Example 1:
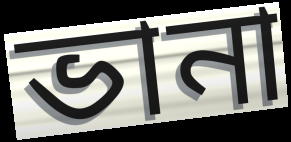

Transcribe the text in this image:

ভানা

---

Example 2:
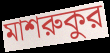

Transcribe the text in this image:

মাশরুকুর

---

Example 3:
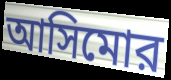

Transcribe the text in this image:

আসিমোর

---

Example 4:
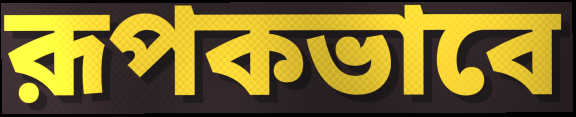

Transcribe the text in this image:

রূপকভাবে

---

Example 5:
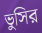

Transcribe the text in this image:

ভুসির